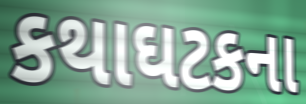
કથાઘટકના